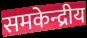
समकेन्द्रीय